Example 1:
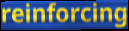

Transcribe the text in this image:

reinforcing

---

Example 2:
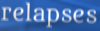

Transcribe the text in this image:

relapses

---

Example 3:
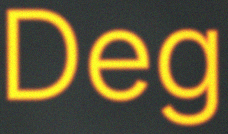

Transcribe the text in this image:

Deg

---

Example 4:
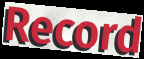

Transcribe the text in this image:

Record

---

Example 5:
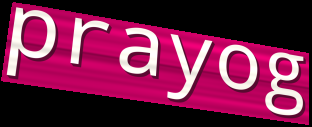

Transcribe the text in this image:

prayog